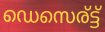
ഡെസെര്ട്ട്